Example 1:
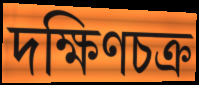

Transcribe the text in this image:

দক্ষিণচক্র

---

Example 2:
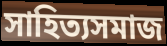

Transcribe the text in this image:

সাহিত্যসমাজ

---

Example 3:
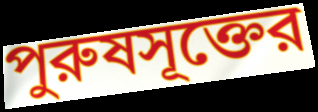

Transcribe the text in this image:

পুরুষসূক্তের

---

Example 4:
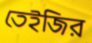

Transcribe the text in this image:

তেইজির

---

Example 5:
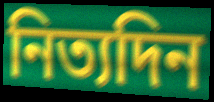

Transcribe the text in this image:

নিত্যদিন